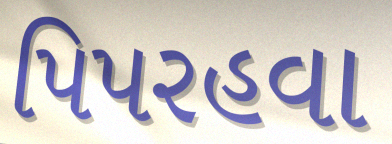
પિપરહવા